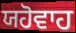
ਯਹੋਵਾਹ